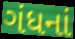
ગંધનાં